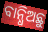
ବାନ୍ଧିଅଛୁ